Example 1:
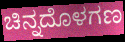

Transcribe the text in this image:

ಚಿನ್ನದೊಳಗಣ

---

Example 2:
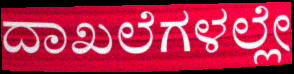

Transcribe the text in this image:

ದಾಖಲೆಗಳಲ್ಲೇ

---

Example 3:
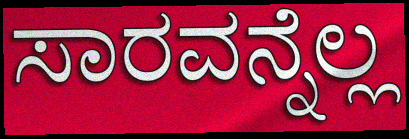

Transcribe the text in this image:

ಸಾರವನ್ನೆಲ್ಲ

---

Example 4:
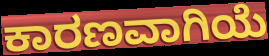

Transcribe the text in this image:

ಕಾರಣವಾಗಿಯೆ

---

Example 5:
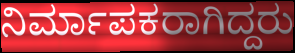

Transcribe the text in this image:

ನಿರ್ಮಾಪಕರಾಗಿದ್ದರು